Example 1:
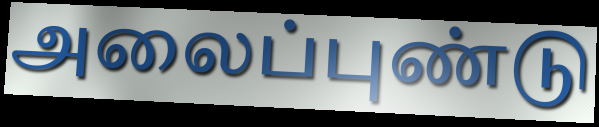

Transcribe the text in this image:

அலைப்புண்டு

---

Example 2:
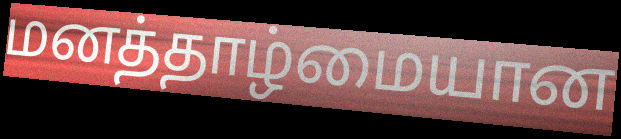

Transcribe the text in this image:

மனத்தாழ்மையான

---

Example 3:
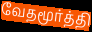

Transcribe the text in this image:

வேதமூர்த்தி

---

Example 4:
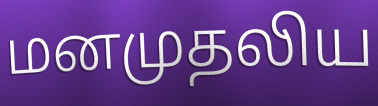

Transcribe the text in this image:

மனமுதலிய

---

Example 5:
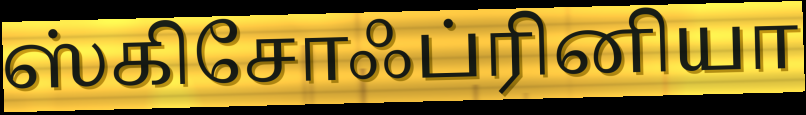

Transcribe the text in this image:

ஸ்கிசோஃப்ரினியா